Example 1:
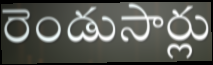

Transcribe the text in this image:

రెండుసార్లు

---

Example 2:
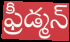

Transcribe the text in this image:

ఫ్రీడ్మన్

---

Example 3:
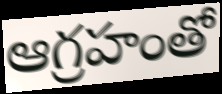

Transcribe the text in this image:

ఆగ్రహంతో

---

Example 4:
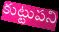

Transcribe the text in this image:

కుట్టుపని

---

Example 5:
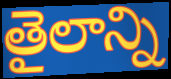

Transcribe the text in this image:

తైలాన్ని